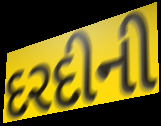
દરદીની